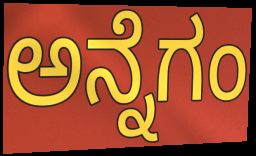
ಅನ್ನೆಗಂ